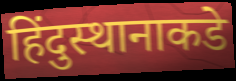
हिंदुस्थानाकडे